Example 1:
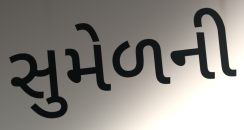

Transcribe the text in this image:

સુમેળની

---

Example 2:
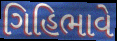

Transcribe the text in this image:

ગિહિભાવે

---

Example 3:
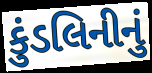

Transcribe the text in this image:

કુંડલિનીનું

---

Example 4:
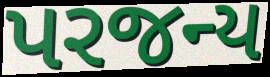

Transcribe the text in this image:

પરજન્ય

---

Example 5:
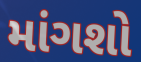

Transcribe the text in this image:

માંગશો